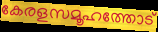
കേരളസമൂഹത്തോട്